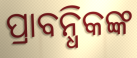
ପ୍ରାବନ୍ଧିକଙ୍କ